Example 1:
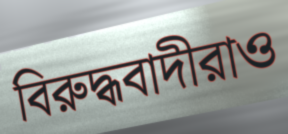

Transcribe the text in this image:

বিরুদ্ধবাদীরাও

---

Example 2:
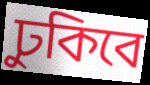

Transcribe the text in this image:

ঢুকিবে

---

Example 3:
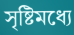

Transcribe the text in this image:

সৃষ্টিমধ্যে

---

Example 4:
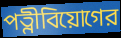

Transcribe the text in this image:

পত্নীবিয়োগের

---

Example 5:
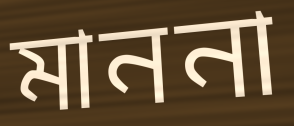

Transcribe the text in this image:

মাননা